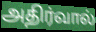
அதிர்வால்